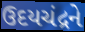
ઉદયચંદ્રને